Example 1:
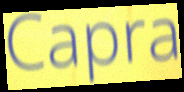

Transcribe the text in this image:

Capra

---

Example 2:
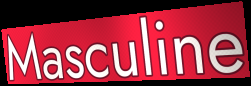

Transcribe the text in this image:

Masculine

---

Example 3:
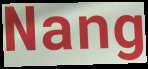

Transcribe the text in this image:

Nang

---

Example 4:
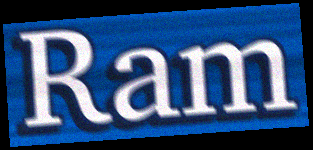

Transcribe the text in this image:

Ram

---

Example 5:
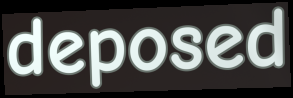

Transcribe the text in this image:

deposed